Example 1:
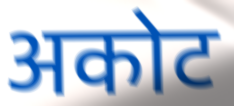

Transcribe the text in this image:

अकोट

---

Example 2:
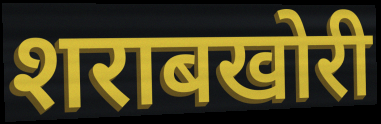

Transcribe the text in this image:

शराबखोरी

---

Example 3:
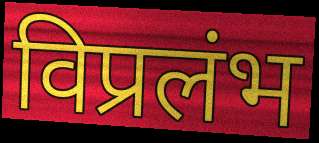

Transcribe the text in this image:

विप्रलंभ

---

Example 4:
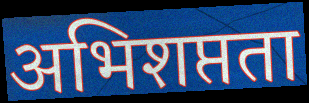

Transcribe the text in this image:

अभिशप्तता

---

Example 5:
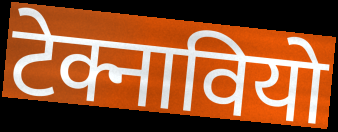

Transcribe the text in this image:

टेक्नावियो